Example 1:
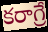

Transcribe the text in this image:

కరాగ్రే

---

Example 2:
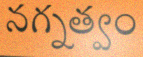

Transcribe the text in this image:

నగ్నత్వం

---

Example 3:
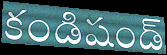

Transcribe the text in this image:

కండిషండ్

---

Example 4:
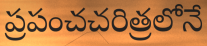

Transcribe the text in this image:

ప్రపంచచరిత్రలోనే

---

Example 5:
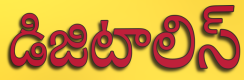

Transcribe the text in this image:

డిజిటాలిస్